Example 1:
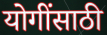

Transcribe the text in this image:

योगींसाठी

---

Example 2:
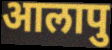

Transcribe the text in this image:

आलापु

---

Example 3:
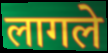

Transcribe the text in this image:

लागले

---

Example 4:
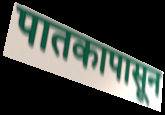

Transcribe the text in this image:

पातकापासून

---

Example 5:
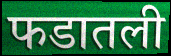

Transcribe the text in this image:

फडातली